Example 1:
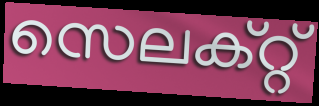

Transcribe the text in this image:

സെലക്റ്റ്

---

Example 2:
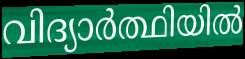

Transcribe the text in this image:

വിദ്യാർത്ഥിയിൽ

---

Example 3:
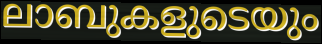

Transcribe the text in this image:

ലാബുകളുടെയും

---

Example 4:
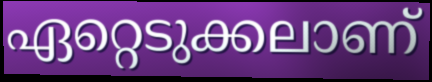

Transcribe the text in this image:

ഏറ്റെടുക്കലാണ്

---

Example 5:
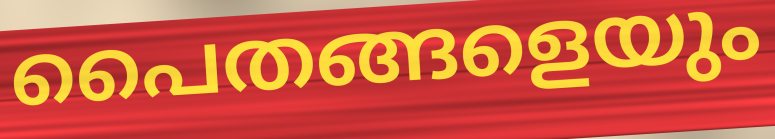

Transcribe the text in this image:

പൈതങ്ങളെയും